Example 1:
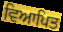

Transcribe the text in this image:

ਵਿਆਪਿਤ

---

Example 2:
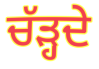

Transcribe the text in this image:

ਚੱੜ੍ਹਦੇ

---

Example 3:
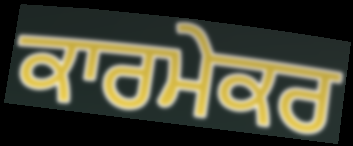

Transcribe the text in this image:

ਕਾਰਮੇਕਰ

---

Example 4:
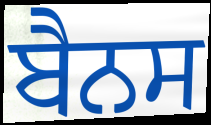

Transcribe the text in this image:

ਬੈਨਸ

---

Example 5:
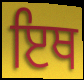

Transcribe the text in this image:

ਇਥ